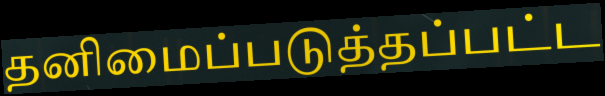
தனிமைப்படுத்தப்பட்ட